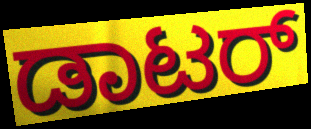
ಡಾಟರ್